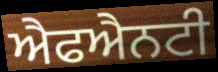
ਐਫਐਨਟੀ